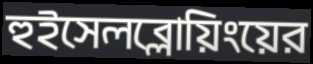
হুইসেলব্লোয়িংয়ের